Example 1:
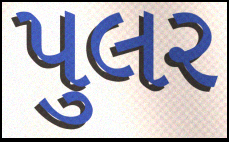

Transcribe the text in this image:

પુલર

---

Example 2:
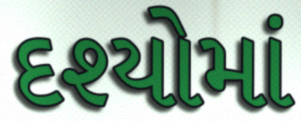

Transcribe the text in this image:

દશ્યોમાં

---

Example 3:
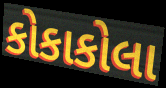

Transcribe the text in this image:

કોકાકોલા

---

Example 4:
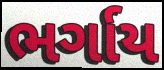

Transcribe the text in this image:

ભર્ગાય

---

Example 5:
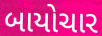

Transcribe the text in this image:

બાયોચાર